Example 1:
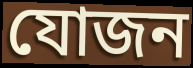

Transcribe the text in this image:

যোজন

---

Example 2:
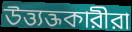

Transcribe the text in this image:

উত্ত্যক্তকারীরা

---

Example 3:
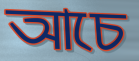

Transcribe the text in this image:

আচে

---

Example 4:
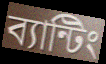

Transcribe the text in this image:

ব্যান্টিং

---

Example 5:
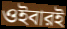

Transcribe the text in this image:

ওইবারই